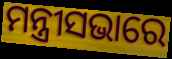
ମନ୍ତ୍ରୀସଭାରେ